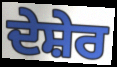
ਦੇਸ਼ੇਰ